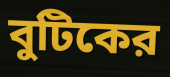
বুটিকের